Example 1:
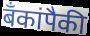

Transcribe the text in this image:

बँकांपैकी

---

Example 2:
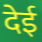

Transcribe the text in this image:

देई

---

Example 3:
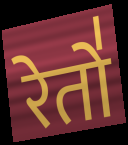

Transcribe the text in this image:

रेतो॑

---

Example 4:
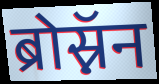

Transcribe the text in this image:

ब्रोस्नॅन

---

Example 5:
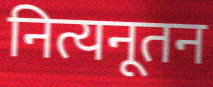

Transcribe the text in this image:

नित्यनूतन